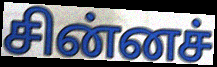
சின்னச்